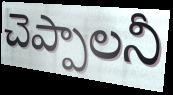
చెప్పాలనీ